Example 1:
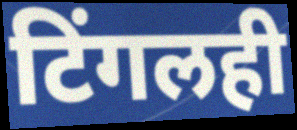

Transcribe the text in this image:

टिंगलही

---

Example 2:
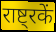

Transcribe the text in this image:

राष्ट्रकें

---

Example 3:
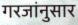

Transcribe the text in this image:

गरजांनुसार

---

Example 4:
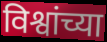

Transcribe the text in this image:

विश्वांच्या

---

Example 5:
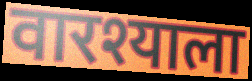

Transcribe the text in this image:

वारश्याला